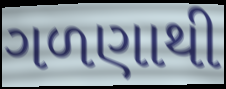
ગળણાથી